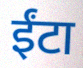
ईंटा